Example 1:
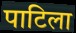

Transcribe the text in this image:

पाटिला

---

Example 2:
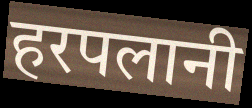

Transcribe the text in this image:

हरपलानी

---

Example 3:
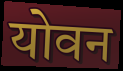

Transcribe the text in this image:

योवन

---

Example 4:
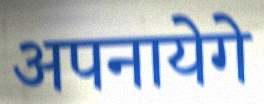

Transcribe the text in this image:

अपनायेगे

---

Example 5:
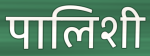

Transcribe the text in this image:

पालिशी